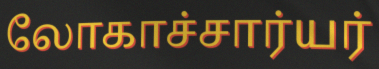
லோகாச்சார்யர்